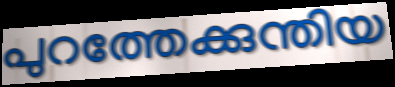
പുറത്തേക്കുന്തിയ